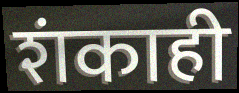
शंकाही